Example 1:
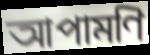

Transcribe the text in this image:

আপামণি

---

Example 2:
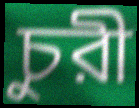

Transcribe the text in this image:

চুরী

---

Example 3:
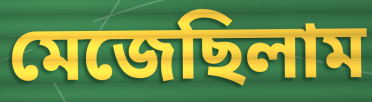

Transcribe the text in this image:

মেজেছিলাম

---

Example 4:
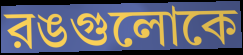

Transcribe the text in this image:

রঙগুলোকে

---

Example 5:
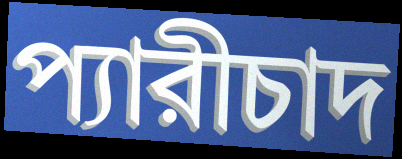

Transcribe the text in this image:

প্যারীচাদ